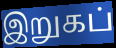
இறுகப்